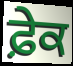
ਫ਼ੇਕ